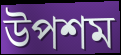
উপশম